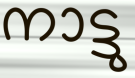
നാട്ടു